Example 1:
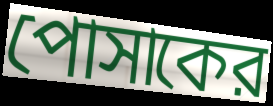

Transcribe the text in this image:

পোসাকের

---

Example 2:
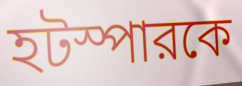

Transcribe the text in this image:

হটস্পারকে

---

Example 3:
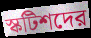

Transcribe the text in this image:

স্কটিশদের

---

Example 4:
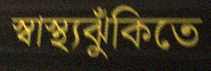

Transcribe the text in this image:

স্বাস্থ্যঝুঁকিতে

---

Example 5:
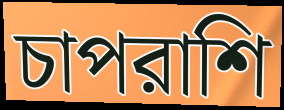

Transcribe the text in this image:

চাপরাশি